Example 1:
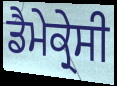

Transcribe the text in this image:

ਡੈਮੇਕ੍ਰੇਸੀ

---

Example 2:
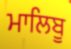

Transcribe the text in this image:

ਮਾਲਿਬੂ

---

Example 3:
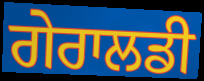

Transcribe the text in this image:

ਗੇਰਾਲਡੀ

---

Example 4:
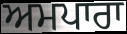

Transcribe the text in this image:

ਅਮਪਾਰਾ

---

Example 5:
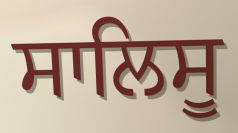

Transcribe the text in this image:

ਸਾਲਿਸੂ